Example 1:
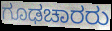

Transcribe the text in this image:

ಗೂಢಚಾರರು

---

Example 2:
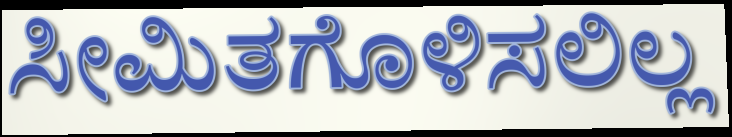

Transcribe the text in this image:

ಸೀಮಿತಗೊಳಿಸಲಿಲ್ಲ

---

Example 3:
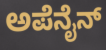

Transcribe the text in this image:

ಅಪೆನೈನ್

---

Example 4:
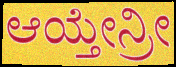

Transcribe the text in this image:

ಆಯ್ತೇನ್ರೀ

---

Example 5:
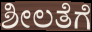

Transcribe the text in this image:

ಶೀಲತೆಗೆ